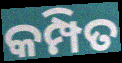
କମ୍ପିତ